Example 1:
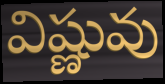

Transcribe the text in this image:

విష్ణువు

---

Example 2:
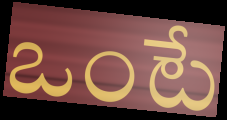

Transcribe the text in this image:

ఒంటే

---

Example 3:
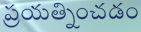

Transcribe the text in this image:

ప్రయత్నించడం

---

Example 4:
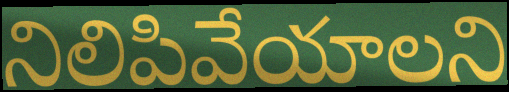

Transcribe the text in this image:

నిలిపివేయాలని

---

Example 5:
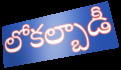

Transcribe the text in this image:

లోకల్బాడీ